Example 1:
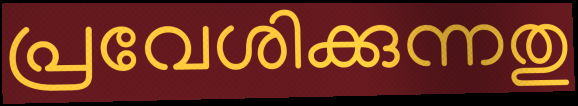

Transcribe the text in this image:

പ്രവേശിക്കുന്നതു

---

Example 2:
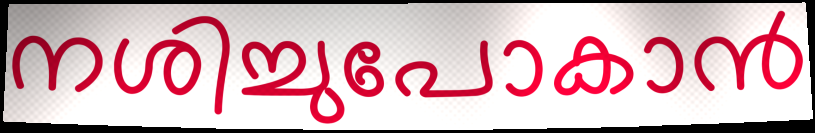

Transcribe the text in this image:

നശിച്ചുപോകാൻ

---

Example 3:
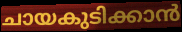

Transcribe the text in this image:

ചായകുടിക്കാൻ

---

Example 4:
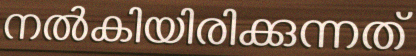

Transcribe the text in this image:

നൽകിയിരിക്കുന്നത്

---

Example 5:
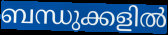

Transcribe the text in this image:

ബന്ധുക്കളിൽ